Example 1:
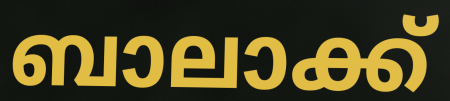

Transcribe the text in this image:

ബാലാക്ക്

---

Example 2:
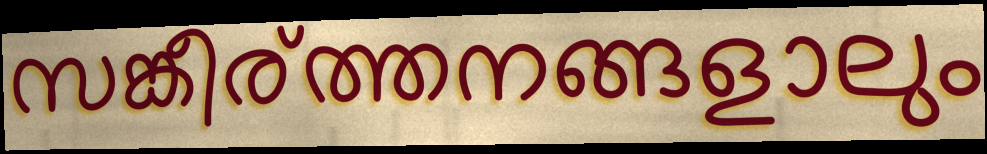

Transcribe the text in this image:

സങ്കീര്ത്തനങ്ങളാലും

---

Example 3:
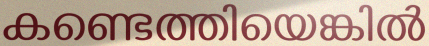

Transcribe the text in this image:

കണ്ടെത്തിയെങ്കിൽ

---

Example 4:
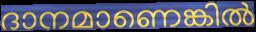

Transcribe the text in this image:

ദാനമാണെങ്കിൽ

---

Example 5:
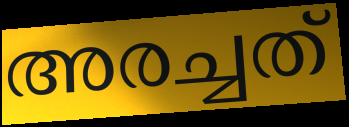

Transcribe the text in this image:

അരച്ചത്